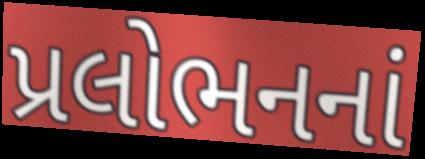
પ્રલોભનનાં